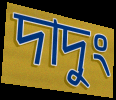
দাদুং